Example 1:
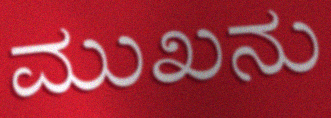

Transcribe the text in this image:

ಮುಖನು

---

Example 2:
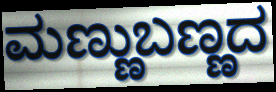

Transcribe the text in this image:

ಮಣ್ಣುಬಣ್ಣದ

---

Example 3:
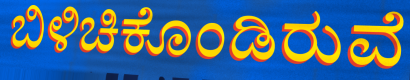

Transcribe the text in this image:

ಬಿಳಿಚಿಕೊಂಡಿರುವೆ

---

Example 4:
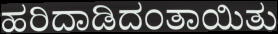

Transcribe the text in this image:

ಹರಿದಾಡಿದಂತಾಯಿತು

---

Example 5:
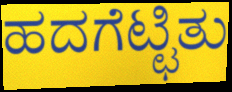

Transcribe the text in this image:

ಹದಗೆಟ್ಟಿತು